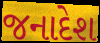
જનાદેશ